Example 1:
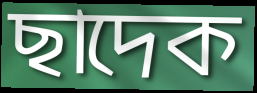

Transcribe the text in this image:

ছাদেক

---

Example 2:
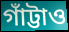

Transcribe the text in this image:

গাঁট্টাও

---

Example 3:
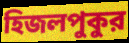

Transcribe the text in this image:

হিজলপুকুর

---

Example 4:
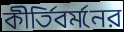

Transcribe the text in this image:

কীর্তিবর্মনের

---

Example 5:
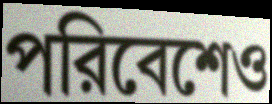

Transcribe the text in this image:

পরিবেশেও